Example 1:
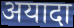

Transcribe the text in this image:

अयादा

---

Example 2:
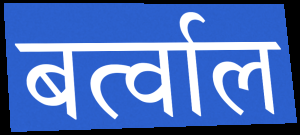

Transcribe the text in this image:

बर्त्वाल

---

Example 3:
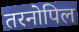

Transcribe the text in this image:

तरनोपिल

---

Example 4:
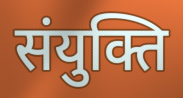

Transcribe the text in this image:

संयुक्ति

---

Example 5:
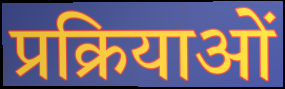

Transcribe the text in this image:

प्रक्रियाओं